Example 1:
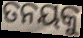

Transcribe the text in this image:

ତନୟକୁ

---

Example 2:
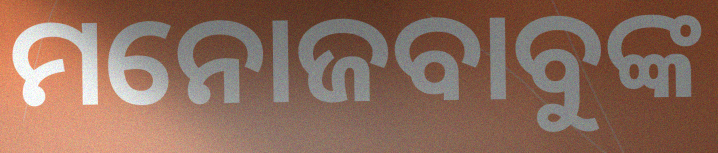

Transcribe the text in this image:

ମନୋଜବାବୁଙ୍କ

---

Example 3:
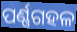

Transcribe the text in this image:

ପର୍ଣ୍ଣଗହଳ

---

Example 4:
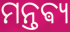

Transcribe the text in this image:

ମନ୍ତଵ୍ୟ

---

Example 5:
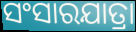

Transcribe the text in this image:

ସଂସାରଯାତ୍ରା